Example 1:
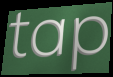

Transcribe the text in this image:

tap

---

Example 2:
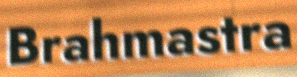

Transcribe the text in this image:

Brahmastra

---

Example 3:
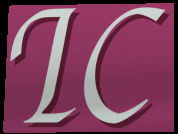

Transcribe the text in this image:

IC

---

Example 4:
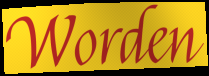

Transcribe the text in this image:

Worden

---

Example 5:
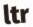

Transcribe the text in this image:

ltr